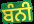
ਬੰਨੀ